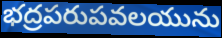
భద్రపరుపవలయును